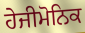
ਹੇਜੀਮੋਨਿਕ